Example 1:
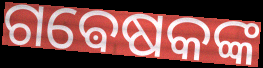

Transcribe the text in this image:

ଗଵେଷକଙ୍କ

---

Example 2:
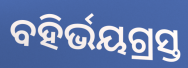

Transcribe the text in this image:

ବହିର୍ଭୟଗ୍ରସ୍ତ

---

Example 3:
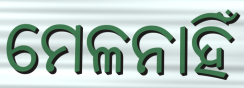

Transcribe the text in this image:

ମେଳନାହିଁ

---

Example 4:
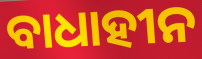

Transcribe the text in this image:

ବାଧାହୀନ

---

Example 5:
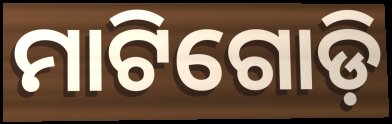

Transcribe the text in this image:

ମାଟିଗୋଡ଼ି